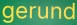
gerund